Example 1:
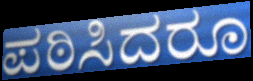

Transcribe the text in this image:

ಪಠಿಸಿದರೂ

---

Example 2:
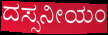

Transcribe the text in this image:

ದಸ್ಸನೀಯಂ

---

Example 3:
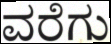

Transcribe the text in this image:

ವರೆಗು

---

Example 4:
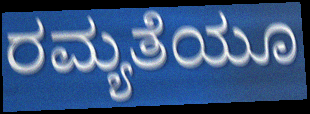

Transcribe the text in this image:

ರಮ್ಯತೆಯೂ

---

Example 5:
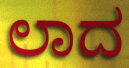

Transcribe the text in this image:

ಲಾದ